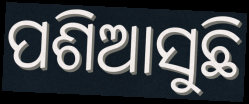
ପଶିଆସୁଛି